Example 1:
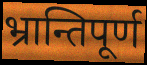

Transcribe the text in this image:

भ्रान्तिपूर्ण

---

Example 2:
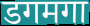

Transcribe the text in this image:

डगमगा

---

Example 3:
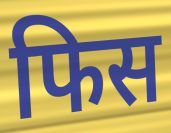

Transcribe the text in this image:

फिस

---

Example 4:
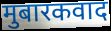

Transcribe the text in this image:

मुबारकवाद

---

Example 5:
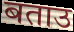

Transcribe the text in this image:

बताउ